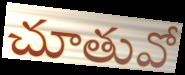
చూతువో